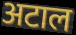
अटाल